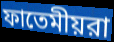
ফাতেমীয়রা